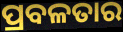
ପ୍ରବଳତାର